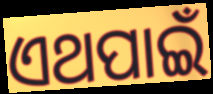
ଏଥପାଇଁ